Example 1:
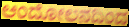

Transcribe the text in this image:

ಆಂದೋಲನದಿಂದ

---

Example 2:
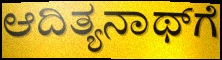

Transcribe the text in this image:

ಆದಿತ್ಯನಾಥ್‌ಗೆ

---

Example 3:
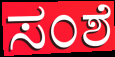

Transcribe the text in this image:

ಸಂಶೆ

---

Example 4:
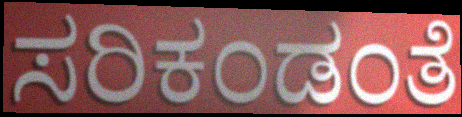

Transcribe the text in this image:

ಸರಿಕಂಡಂತೆ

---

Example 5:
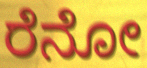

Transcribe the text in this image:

ರೆನೋ